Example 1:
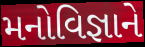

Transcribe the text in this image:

મનોવિજ્ઞાને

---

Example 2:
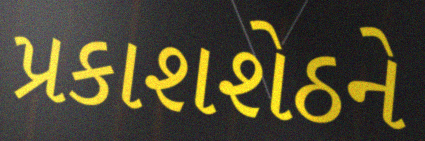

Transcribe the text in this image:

પ્રકાશશેઠને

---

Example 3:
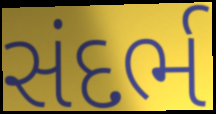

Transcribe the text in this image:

સંદર્ભ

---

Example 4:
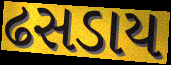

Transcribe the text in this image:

ઢસડાય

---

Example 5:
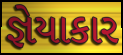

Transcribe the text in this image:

જ્ઞેયાકાર